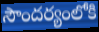
సౌందర్యంలోకి